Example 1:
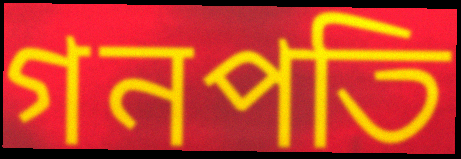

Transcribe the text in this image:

গনপতি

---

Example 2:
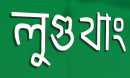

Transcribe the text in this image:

লুগুথাং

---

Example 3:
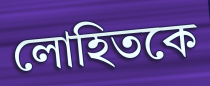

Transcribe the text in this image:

লোহিতকে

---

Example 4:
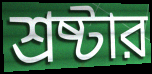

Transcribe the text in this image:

শ্রষ্টার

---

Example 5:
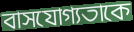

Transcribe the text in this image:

বাসযোগ্যতাকে